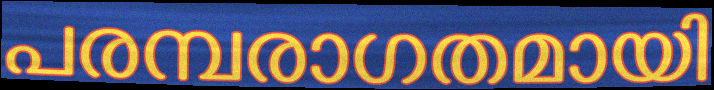
പരമ്പരാഗതമായി